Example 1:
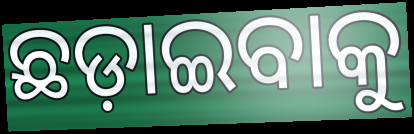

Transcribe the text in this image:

ଛଡ଼ାଇବାକୁ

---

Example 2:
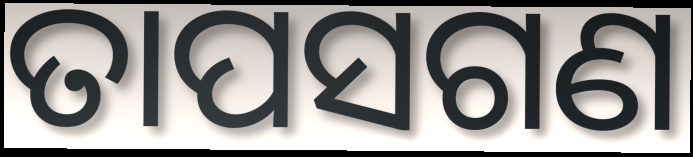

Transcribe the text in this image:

ତାପସଗଣ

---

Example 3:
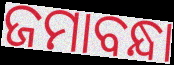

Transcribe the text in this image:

ଜମାବନ୍ଧା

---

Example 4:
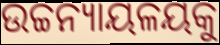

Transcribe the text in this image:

ଉଚ୍ଚନ୍ୟାୟଳୟକୁ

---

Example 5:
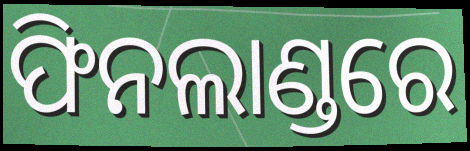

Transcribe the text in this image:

ଫିନଲାଣ୍ଡରେ